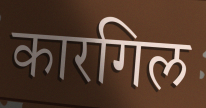
कारगिल